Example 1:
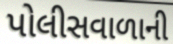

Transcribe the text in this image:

પોલીસવાળાની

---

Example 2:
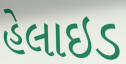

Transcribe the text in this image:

હેલાઇડ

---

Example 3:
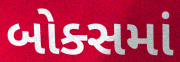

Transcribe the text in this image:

બોક્સમાં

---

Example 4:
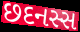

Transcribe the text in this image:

છદનસ્સ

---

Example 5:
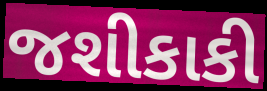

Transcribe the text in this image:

જશીકાકી